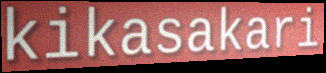
kikasakari